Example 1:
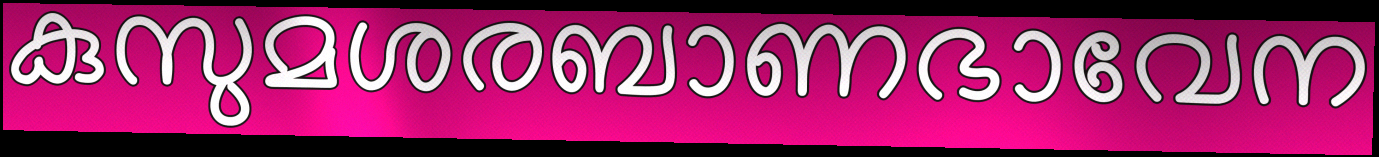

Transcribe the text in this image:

കുസുമശരബാണഭാവേന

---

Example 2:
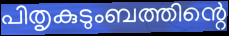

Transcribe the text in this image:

പിതൃകുടുംബത്തിന്റെ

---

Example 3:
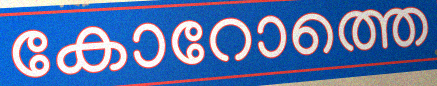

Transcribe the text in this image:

കോറോത്തെ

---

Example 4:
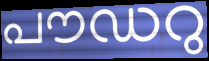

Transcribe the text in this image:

പൗഡറു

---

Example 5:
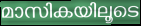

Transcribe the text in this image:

മാസികയിലൂടെ